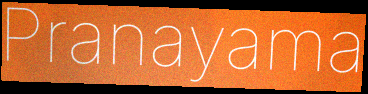
Pranayama